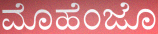
ಮೊಹೆಂಜೊ